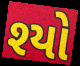
શ્યો